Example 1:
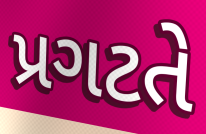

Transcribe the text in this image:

પ્રગટતે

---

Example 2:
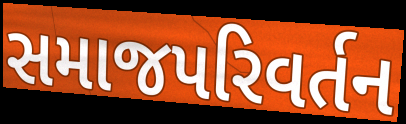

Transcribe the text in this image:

સમાજપરિવર્તન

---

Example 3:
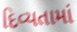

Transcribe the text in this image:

દિવ્યતામાં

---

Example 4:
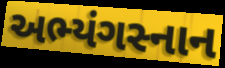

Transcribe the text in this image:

અભ્યંગસ્નાન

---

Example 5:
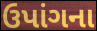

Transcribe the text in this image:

ઉપાંગના